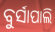
ବୁର୍ସାପାଲି